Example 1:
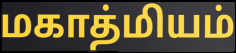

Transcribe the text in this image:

மகாத்மியம்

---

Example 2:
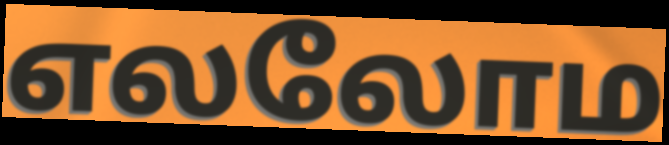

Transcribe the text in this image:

எலலோம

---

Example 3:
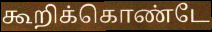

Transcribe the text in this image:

கூறிக்கொண்டே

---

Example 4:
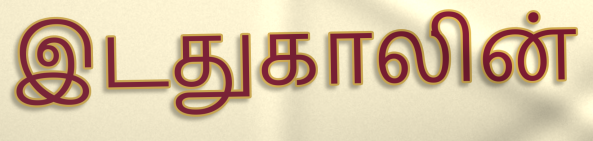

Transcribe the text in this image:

இடதுகாலின்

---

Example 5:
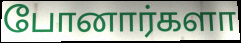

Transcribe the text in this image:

போனார்களா